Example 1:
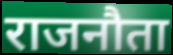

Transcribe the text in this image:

राजनौता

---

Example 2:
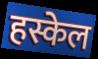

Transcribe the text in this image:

हस्केल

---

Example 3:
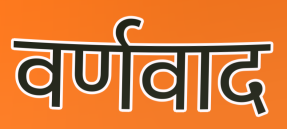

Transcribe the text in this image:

वर्णवाद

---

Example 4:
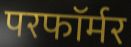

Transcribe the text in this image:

परफॉर्मर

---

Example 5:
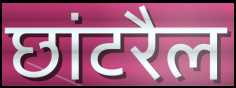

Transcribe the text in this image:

छांटरैल